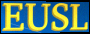
EUSL